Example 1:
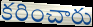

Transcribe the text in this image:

కరించారు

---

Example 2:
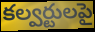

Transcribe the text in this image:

కల్వర్టులపై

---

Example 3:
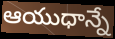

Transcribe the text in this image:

ఆయుధాన్నే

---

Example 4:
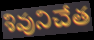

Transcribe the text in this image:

శివునిచేత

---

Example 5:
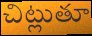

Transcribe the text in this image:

చిట్లుతూ